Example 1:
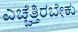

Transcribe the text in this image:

ಎಚ್ಚೆತ್ತಿರಬೇಕು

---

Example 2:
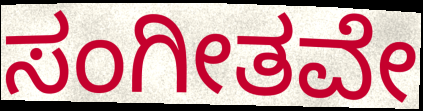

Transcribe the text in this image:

ಸಂಗೀತವೇ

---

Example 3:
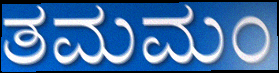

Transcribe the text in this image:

ತಮಮಂ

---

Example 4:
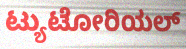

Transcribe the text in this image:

ಟ್ಯುಟೋರಿಯಲ್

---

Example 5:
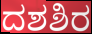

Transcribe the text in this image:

ದಶಶಿರ